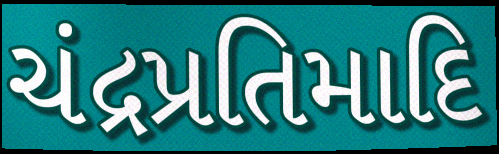
ચંદ્રપ્રતિમાદિ